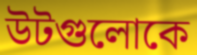
উটগুলোকে